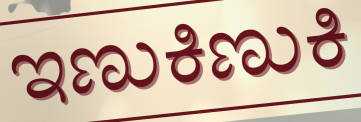
ಇಣುಕಿಣುಕಿ